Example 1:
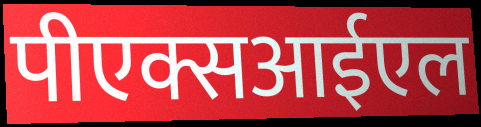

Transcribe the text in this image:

पीएक्सआईएल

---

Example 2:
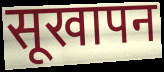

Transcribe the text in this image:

सूखापन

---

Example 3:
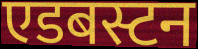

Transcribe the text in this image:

एडबस्टन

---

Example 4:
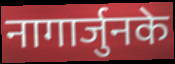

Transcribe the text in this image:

नागार्जुनके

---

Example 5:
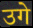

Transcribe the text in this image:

उगे